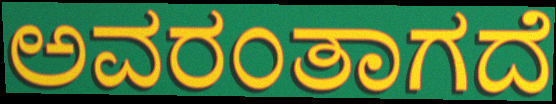
ಅವರಂತಾಗದೆ